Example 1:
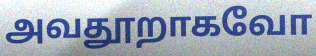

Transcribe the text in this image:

அவதூறாகவோ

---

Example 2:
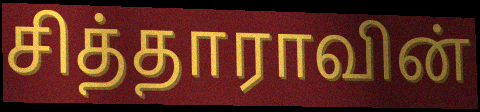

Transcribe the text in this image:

சித்தாராவின்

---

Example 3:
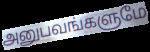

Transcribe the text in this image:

அனுபவங்களுமே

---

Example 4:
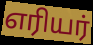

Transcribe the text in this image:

எரியர்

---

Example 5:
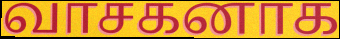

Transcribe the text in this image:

வாசகனாக